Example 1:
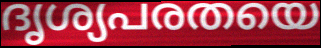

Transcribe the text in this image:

ദൃശ്യപരതയെ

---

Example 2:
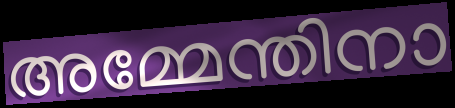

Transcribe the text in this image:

അമ്മേന്തിനാ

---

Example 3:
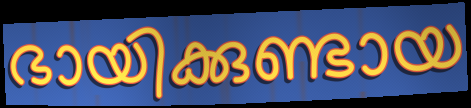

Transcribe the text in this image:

ഭായിക്കുണ്ടായ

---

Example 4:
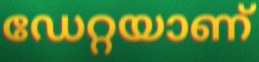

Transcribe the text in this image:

ഡേറ്റയാണ്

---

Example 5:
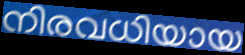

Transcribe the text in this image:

നിരവധിയായ